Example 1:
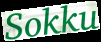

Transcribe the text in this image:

Sokku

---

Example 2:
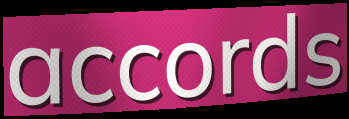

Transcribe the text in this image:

accords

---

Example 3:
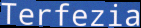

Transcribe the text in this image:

Terfezia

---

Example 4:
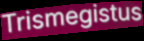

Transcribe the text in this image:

Trismegistus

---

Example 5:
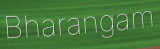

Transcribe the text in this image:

Bharangam